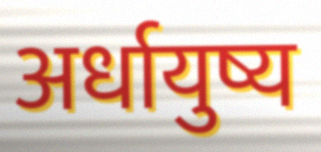
अर्धायुष्य